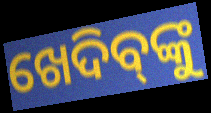
ଖେଦିବ୍‌ଙ୍କୁ